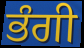
ਭੰਗੀ